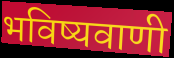
भविष्यवाणी